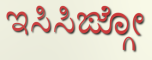
ಇಸಿಸಿಙ್ಗೋ